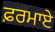
ਫ਼ਰਮਾਏ